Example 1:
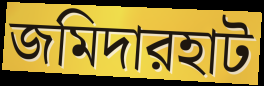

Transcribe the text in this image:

জমিদারহাট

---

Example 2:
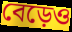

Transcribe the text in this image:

বেড়েও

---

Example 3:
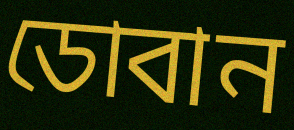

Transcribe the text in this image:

ডোবান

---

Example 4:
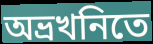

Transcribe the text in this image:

অভ্রখনিতে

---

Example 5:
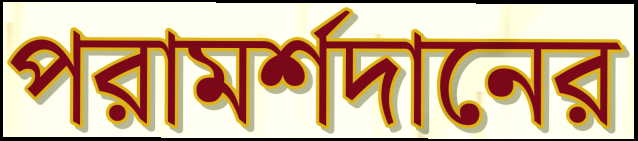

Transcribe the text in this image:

পরামর্শদানের